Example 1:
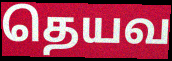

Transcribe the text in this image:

தெயவ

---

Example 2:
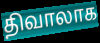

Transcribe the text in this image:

திவாலாக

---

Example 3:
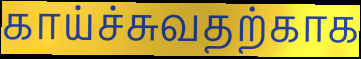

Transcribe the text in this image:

காய்ச்சுவதற்காக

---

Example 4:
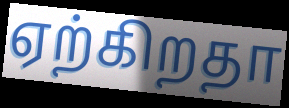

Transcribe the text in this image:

ஏற்கிறதா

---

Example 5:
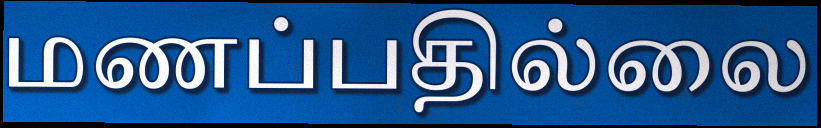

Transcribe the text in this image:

மணப்பதில்லை